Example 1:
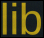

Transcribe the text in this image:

lib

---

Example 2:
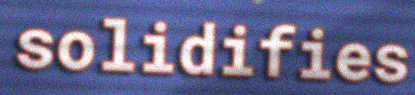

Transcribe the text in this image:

solidifies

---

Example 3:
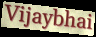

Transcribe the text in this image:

Vijaybhai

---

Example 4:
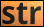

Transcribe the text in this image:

str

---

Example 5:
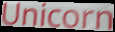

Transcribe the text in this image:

Unicorn